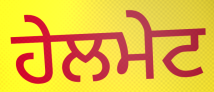
ਹੇਲਮੇਟ